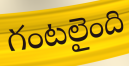
గంటలైంది